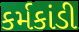
કર્મકાંડી